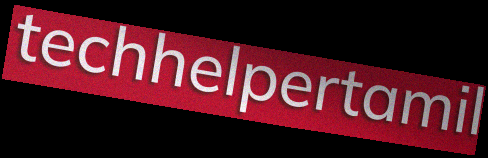
techhelpertamil